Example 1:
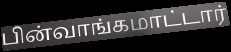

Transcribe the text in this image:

பின்வாங்கமாட்டார்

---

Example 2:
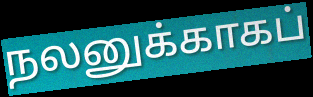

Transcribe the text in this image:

நலனுக்காகப்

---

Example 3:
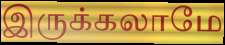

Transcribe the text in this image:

இருக்கலாமே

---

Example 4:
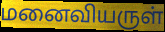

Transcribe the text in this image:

மனைவியருள்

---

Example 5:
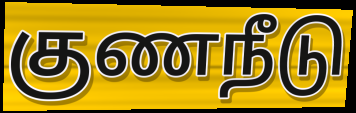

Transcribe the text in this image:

குணநீடு